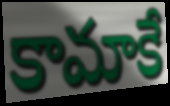
కామాకే